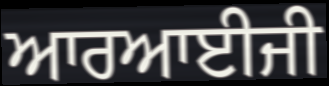
ਆਰਆਈਜੀ